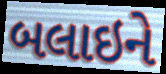
બલાઇને